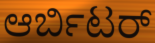
ಆರ್ಬಿಟರ್